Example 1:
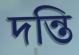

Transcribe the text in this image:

দন্তি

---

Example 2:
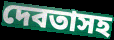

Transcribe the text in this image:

দেবতাসহ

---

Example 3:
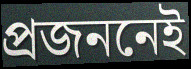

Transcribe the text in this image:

প্রজননেই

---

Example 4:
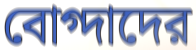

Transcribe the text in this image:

বোগ্দাদের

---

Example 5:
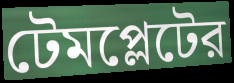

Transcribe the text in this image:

টেমপ্লেটের